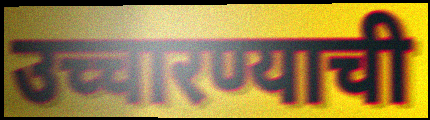
उच्चारण्याची